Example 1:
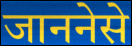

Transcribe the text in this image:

जाननेसे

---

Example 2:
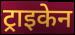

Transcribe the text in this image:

ट्राइकेन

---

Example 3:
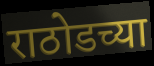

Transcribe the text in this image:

राठोडच्या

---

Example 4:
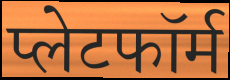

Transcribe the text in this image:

प्‍लेटफॉर्म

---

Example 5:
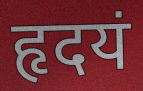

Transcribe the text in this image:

हृदयं